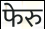
फेरु